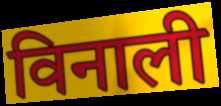
विनाली